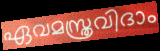
ഏവമസ്ത്രവിദാം